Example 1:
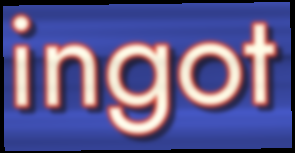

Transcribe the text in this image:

ingot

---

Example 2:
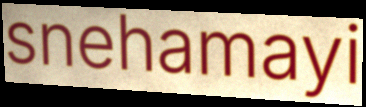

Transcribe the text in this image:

snehamayi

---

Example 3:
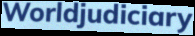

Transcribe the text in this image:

Worldjudiciary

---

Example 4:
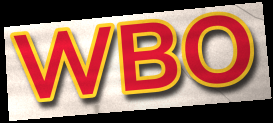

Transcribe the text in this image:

WBO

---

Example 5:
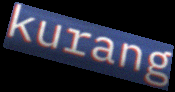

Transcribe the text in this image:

kurang